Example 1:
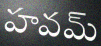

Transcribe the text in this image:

హవమ్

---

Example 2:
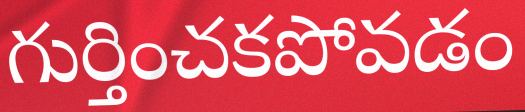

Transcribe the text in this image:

గుర్తించకపోవడం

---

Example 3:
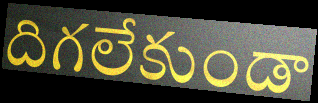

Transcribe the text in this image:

దిగలేకుండా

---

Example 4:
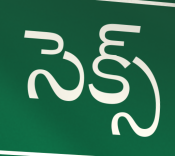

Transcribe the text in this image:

సెక్స్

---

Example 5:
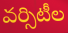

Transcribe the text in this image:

వర్సిటీల